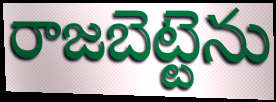
రాజబెట్టెను